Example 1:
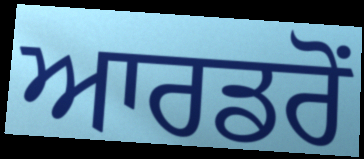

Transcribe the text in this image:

ਆਰਡਰੋਂ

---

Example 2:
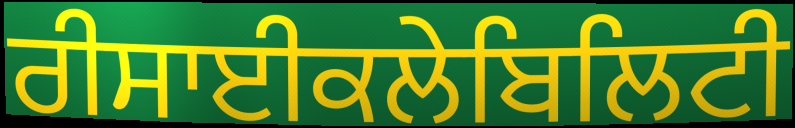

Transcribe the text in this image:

ਰੀਸਾਈਕਲੇਬਿਲਿਟੀ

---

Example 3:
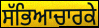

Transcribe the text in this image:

ਸੱਭਿਆਚਾਰਕੇ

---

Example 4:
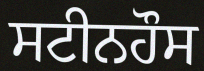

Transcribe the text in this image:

ਸਟੀਨਹੌਸ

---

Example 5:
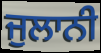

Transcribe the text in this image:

ਜੁਲਾਨੀ